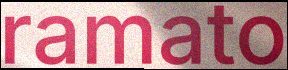
ramato